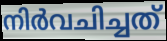
നിർവചിച്ചത്